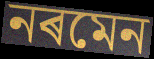
নৰমেন